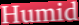
Humid